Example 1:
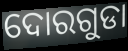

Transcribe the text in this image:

ଦୋରଗୁଡା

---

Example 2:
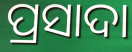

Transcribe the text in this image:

ପ୍ରସାଦା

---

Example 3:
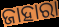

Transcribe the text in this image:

ଜାହାରା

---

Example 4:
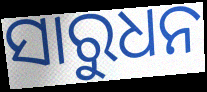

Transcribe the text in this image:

ସାରୁଧନ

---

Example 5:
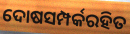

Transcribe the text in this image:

ଦୋଷସମ୍ପର୍କରହିତ